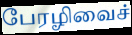
பேரழிவைச்